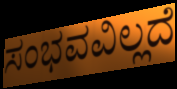
ಸಂಭವವಿಲ್ಲದೆ